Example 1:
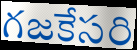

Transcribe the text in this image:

గజకేసరి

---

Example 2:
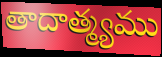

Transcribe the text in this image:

తాదాత్మ్యము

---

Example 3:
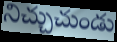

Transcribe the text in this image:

నిచ్చుచుండు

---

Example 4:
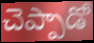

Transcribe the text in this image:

చెప్పాడో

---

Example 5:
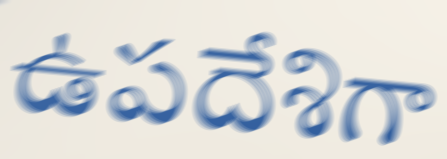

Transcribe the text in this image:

ఉపదేశిగా